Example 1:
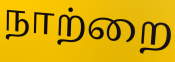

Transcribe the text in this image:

நாற்றை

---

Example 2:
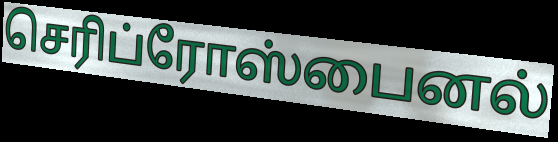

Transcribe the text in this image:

செரிப்ரோஸ்பைனல்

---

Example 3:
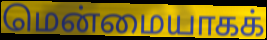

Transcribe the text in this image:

மென்மையாகக்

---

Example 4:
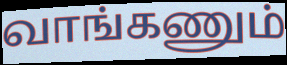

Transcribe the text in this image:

வாங்கணும்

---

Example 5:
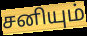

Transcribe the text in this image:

சனியும்